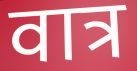
वात्र